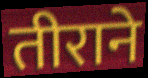
तीराने